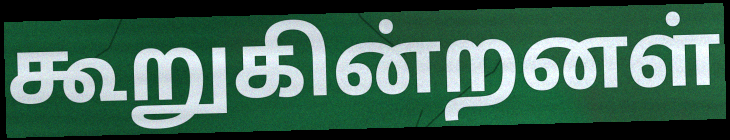
கூறுகின்றனள்